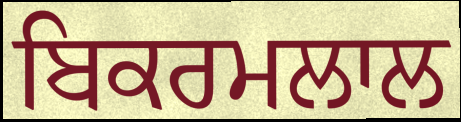
ਬਿਕਰਮਲਾਲ